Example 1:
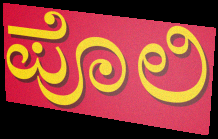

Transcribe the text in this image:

ಪೊಲಿ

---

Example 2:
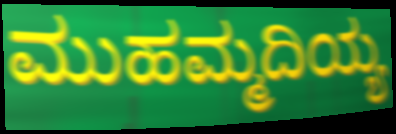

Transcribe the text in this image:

ಮುಹಮ್ಮದಿಯ್ಯ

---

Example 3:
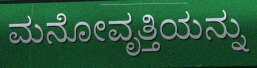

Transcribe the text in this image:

ಮನೋವೃತ್ತಿಯನ್ನು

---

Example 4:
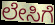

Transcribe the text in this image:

ಲೇಸಿಗೆ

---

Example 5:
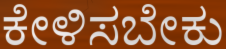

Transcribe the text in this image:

ಕೇಳಿಸಬೇಕು